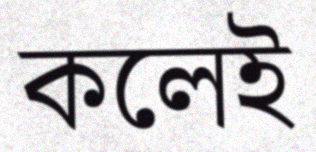
কলেই